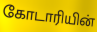
கோடாரியின்